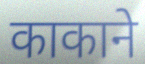
काकाने